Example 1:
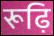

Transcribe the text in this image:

रूढ़ि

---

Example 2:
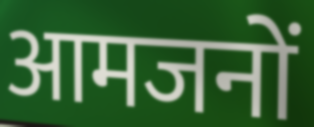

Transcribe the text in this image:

आमजनों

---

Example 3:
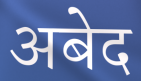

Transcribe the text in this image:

अबेद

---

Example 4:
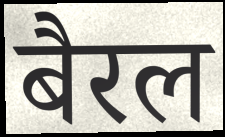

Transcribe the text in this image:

बैरल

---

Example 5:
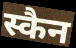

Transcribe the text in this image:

स्कैन